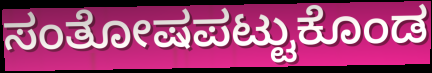
ಸಂತೋಷಪಟ್ಟುಕೊಂಡ